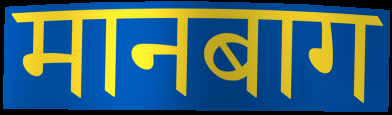
मानबाग